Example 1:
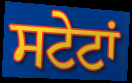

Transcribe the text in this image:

ਸਟੇਟਾਂ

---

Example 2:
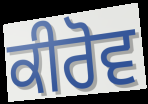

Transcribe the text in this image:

ਕੀਰੋਵ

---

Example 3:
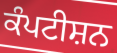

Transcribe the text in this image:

ਕੰਪਟੀਸ਼ਨ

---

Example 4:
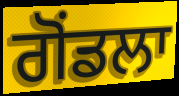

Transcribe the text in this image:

ਗੋਂਡਲਾ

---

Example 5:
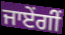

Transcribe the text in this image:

ਜਾਏਂਗੀਂ